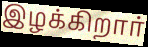
இழக்கிறார்